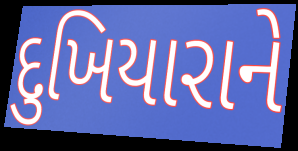
દુખિયારાને